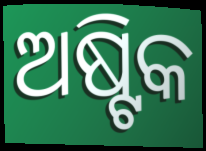
ଅଷ୍ଟିକ